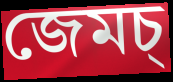
জেমচ্